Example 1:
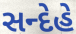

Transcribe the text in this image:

સન્દેહે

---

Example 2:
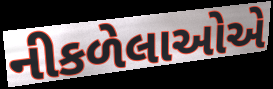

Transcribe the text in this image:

નીકળેલાઓએ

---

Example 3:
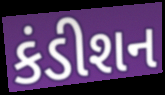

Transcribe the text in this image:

કંડીશન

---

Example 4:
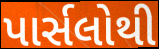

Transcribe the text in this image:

પાર્સલોથી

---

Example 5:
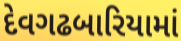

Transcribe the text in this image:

દેવગઢબારિયામાં